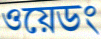
ওয়েডং